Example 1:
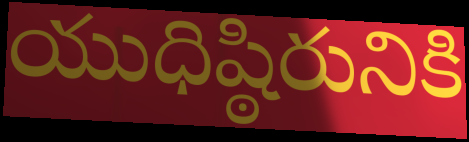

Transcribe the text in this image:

యుధిష్ఠిరునికి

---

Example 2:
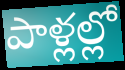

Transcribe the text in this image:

పాళ్లల్లో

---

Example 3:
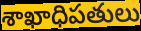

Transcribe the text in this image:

శాఖాధిపతులు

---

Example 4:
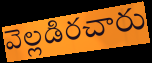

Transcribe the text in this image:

వెల్లడిరచారు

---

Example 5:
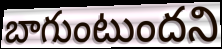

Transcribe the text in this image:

బాగుంటుందని